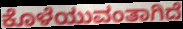
ಕೊಳೆಯುವಂತಾಗಿದೆ